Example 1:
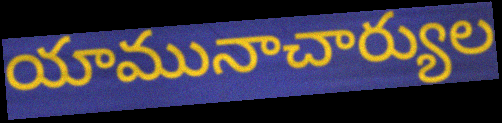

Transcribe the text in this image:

యామునాచార్యుల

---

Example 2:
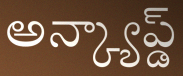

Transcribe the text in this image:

అన్క్యాప్డ్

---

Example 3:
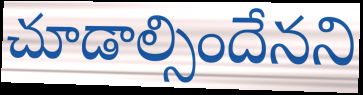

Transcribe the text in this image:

చూడాల్సిందేనని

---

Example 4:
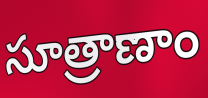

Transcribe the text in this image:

సూత్రాణాం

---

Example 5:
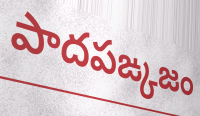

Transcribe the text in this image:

పాదపఙ్కజం